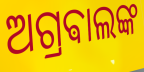
ଅଗ୍ରଵାଲଙ୍କ